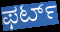
ಫರ್ಟ್